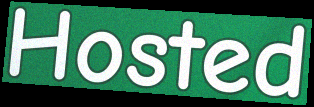
Hosted